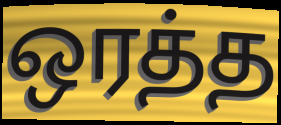
ஒரத்த